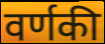
वर्णकी